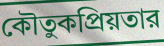
কৌতুকপ্রিয়তার